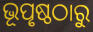
ଭୂପୃଷ୍ଠଠାରୁ